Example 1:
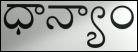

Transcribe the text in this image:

ధాన్యాం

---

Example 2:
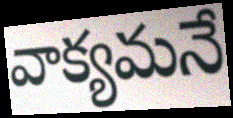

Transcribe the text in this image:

వాక్యమనే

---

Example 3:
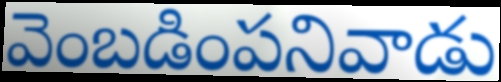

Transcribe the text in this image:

వెంబడింపనివాడు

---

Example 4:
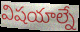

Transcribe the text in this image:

విషయాల్నే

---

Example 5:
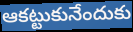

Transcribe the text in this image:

ఆకట్టుకునేందుకు